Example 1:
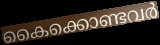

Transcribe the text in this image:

കൈക്കൊണ്ടവർ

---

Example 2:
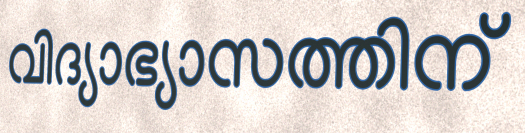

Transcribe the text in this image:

വിദ്യാഭ്യാസത്തിന്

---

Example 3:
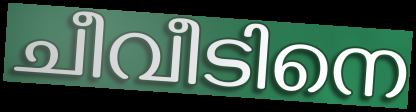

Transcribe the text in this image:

ചീവീടിനെ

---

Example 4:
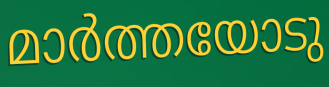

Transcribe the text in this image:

മാർത്തയോടു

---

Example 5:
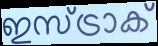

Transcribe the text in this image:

ഇസ്ട്രാക്